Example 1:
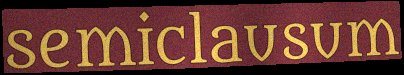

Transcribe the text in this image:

semiclausum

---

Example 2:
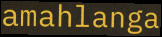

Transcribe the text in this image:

amahlanga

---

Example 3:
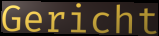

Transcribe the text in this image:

Gericht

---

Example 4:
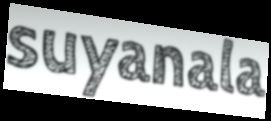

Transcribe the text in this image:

suyanala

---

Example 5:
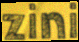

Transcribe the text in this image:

zini